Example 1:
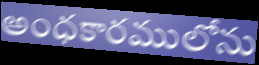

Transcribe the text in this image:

అంధకారములోను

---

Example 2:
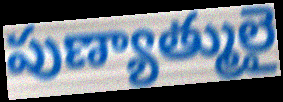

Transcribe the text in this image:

పుణ్యాత్ములై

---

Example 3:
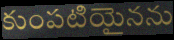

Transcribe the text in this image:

కుంపటియైనను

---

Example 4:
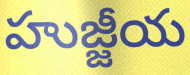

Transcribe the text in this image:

హుజ్జీయ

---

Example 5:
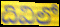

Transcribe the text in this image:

దివిలో